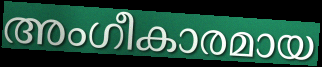
അംഗീകാരമായ